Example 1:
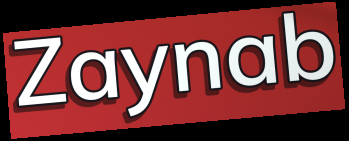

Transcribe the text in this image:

Zaynab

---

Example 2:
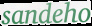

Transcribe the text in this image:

sandeho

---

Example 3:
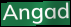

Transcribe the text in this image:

Angad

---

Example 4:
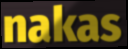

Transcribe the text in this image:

nakas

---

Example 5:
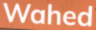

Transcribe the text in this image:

Wahed